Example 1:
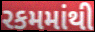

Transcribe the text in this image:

રકમમાંથી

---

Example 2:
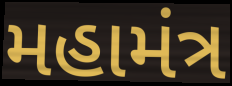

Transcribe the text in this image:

મહામંત્ર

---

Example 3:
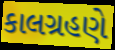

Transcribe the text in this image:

કાલગ્રહણે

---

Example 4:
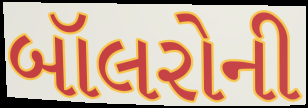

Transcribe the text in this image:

બૉલરોની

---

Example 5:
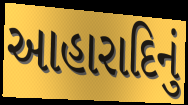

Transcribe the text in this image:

આહારાદિનું